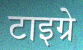
टाइग्रे